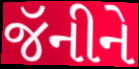
જૅનીને